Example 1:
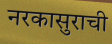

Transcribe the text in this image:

नरकासुराची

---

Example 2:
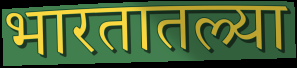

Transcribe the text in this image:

भारतातल्या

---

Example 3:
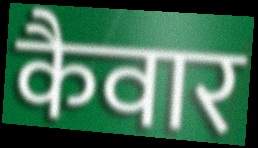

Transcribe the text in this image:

कैवार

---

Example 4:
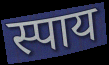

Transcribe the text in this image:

स्पाय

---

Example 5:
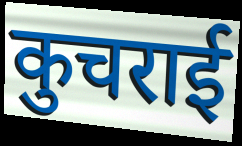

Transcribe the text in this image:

कुचराई